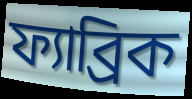
ফ্যাব্রিক